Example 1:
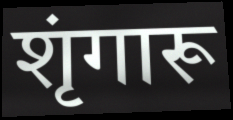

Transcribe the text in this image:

शृंगारू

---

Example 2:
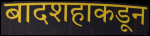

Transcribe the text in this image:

बादशहाकडून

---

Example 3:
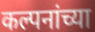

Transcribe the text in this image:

कल्पनांच्या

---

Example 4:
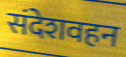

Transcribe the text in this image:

संदेशवहन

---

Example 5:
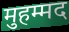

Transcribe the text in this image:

मुहम्मद